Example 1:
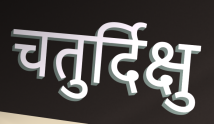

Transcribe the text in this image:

चतुर्दिक्षु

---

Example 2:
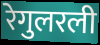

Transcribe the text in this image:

रेगुलरली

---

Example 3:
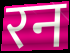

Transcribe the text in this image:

रन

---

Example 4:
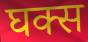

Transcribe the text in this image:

घक्स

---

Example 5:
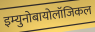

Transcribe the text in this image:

इम्युनोबायोलॉजिकल